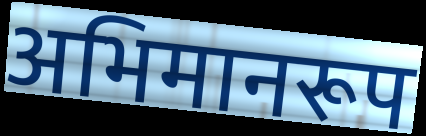
अभिमानरूप